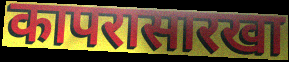
कापरासारखा